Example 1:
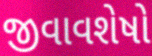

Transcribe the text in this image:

જીવાવશેષો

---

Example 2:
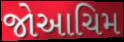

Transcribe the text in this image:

જોઆચિમ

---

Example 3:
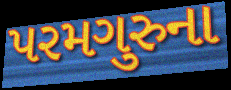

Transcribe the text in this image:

પરમગુરુના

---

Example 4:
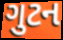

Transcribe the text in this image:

ગુટન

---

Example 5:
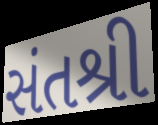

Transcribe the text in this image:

સંતશ્રી